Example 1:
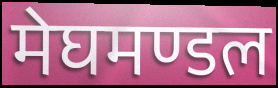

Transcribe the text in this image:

मेघमण्डल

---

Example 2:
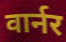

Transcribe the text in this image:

वार्नर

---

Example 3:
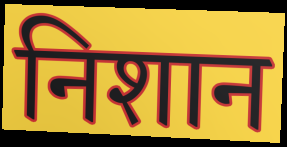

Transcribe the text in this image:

निशान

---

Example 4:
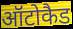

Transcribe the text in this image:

ऑटोकैड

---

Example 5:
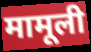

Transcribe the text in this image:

मामूली